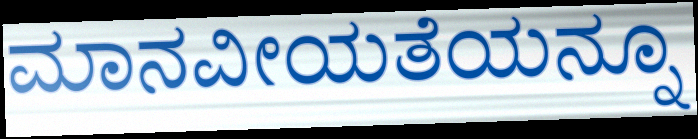
ಮಾನವೀಯತೆಯನ್ನೂ